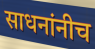
साधनांनीच